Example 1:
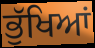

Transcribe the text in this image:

ਭੁੱਖਿਆਂ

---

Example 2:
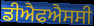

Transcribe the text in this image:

ਡੀਐਫਐਸਸੀ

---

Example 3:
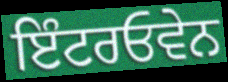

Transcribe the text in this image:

ਇੰਟਰਓਵੇਨ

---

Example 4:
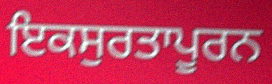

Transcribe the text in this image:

ਇਕਸੁਰਤਾਪੂਰਨ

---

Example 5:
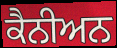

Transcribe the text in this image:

ਕੈਨੀਅਨ